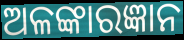
ଅଳଙ୍କାରଜ୍ଞାନ